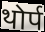
थोर्प